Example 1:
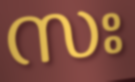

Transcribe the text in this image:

സഃ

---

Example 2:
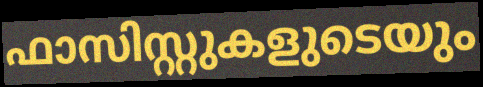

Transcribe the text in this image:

ഫാസിസ്റ്റുകളുടെയും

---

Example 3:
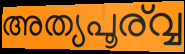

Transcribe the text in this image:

അത്യപൂര്വ്വ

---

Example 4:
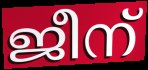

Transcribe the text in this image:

ജീന്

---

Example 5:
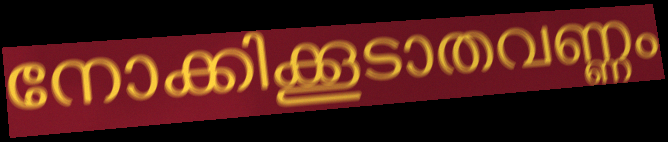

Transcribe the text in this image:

നോക്കിക്കൂടാതവണ്ണം